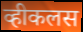
व्हीकलस